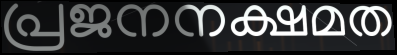
പ്രജനനക്ഷമത